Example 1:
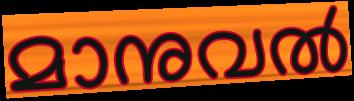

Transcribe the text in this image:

മാനുവൽ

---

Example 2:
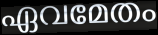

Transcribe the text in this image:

ഏവമേതം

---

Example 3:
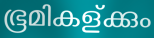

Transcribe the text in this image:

ഭൂമികള്ക്കും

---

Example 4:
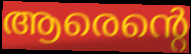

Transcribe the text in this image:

ആരെന്റെ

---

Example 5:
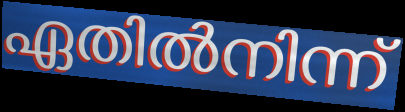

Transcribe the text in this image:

ഏതിൽനിന്ന്